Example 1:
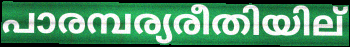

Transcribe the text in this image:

പാരമ്പര്യരീതിയില്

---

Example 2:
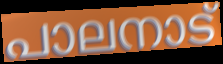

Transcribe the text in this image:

പാലനാട്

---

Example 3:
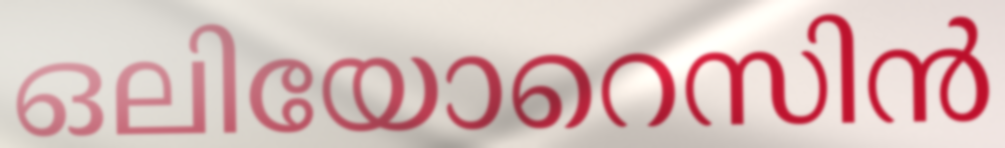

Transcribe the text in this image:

ഒലിയോറെസിൻ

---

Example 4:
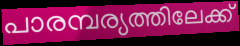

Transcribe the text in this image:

പാരമ്പര്യത്തിലേക്ക്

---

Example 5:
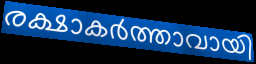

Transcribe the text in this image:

രക്ഷാകർത്താവായി